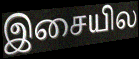
இசையில